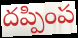
దప్పింప